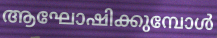
ആഘോഷിക്കുമ്പോൾ